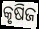
କୃଷିଜ